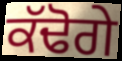
ਕੱਢੋਗੇ